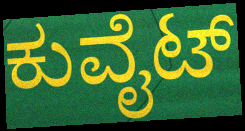
ಕುವೈಟ್